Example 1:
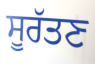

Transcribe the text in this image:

ਸੂਰੱਤਣ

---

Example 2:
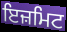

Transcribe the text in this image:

ਇਜ਼ਮਿਟ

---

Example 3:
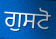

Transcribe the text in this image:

ਗੁਸਟੋ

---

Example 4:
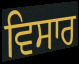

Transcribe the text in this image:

ਵਿਸਾਰ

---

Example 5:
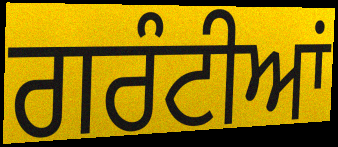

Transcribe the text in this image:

ਗਰੰਟੀਆਂ